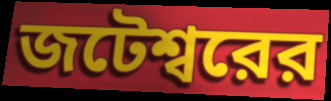
জটেশ্বরের